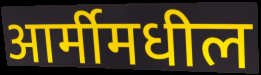
आर्मीमधील